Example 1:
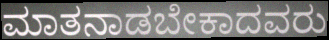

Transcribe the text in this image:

ಮಾತನಾಡಬೇಕಾದವರು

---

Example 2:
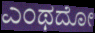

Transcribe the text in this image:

ಎಂಥದೋ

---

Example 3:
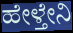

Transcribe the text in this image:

ಹೇಳ್ತೇನಿ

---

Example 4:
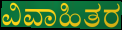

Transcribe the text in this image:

ವಿವಾಹಿತರ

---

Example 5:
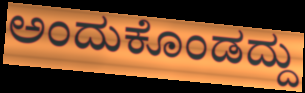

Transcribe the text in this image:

ಅಂದುಕೊಂಡದ್ದು